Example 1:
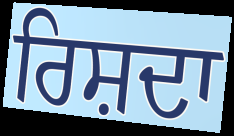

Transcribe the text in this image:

ਰਿਸ਼ਦਾ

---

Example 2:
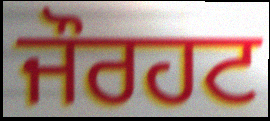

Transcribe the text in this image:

ਜੌਰਹਟ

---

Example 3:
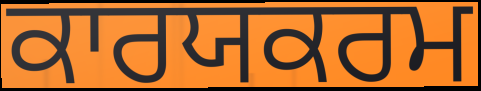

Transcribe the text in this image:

ਕਾਰਯਕਰਮ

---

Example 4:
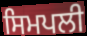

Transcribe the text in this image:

ਸਿਮਪਲੀ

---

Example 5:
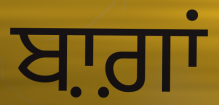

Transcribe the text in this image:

ਬ਼ਾਗ਼ਾਂ